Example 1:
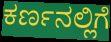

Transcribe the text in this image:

ಕರ್ಣನಲ್ಲಿಗೆ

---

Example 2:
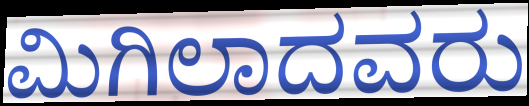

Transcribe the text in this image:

ಮಿಗಿಲಾದವರು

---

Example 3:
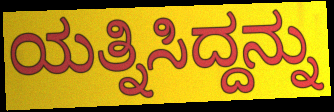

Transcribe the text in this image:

ಯತ್ನಿಸಿದ್ದನ್ನು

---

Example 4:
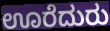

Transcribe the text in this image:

ಊರೆದುರು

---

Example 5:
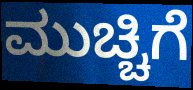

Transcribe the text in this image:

ಮುಚ್ಚಿಗೆ